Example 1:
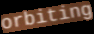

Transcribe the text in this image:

orbiting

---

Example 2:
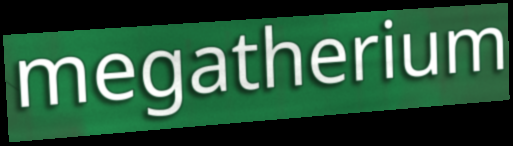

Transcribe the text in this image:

megatherium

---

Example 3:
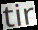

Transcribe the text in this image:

tir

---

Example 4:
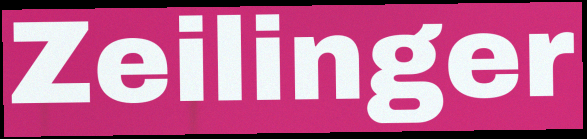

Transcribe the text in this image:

Zeilinger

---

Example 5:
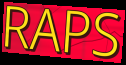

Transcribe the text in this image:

RAPS